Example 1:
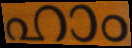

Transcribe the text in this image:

ഹാം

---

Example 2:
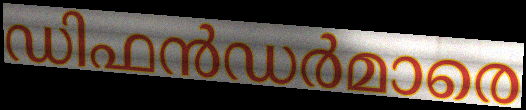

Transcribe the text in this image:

ഡിഫൻഡർമാരെ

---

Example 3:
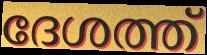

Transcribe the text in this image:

ദേശത്ത്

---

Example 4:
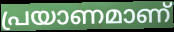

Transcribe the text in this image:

പ്രയാണമാണ്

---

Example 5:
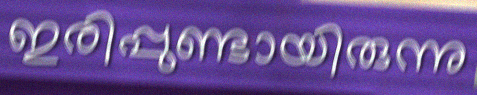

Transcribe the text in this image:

ഇരിപ്പുണ്ടായിരുന്നു